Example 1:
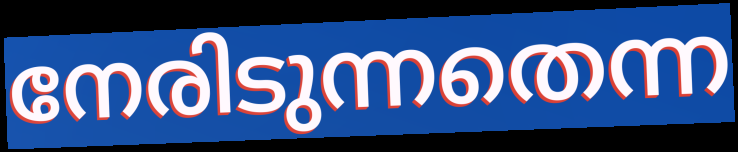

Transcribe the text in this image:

നേരിടുന്നതെന്ന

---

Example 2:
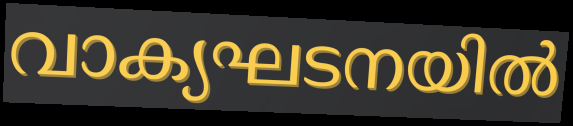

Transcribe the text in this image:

വാക്യഘടനയിൽ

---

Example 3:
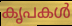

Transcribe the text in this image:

കൃപകൾ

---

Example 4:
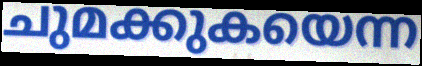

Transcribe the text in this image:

ചുമക്കുകയെന്ന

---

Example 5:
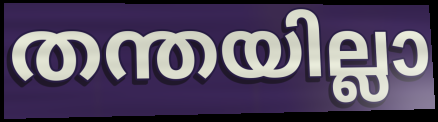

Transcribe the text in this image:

തന്തയില്ലാ